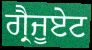
ਗ੍ਰੈਜੂਏਟ